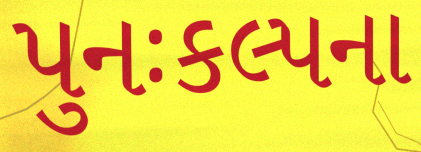
પુનઃકલ્પના